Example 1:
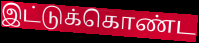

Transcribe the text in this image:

இட்டுக்கொண்ட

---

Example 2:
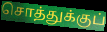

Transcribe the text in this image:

சொத்துக்குப்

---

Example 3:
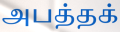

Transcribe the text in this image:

அபத்தக்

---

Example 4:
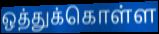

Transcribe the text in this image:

ஒத்துக்கொள்ள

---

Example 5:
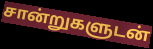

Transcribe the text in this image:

சான்றுகளுடன்